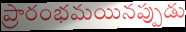
ప్రారంభమయినప్పుడు